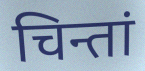
चिन्तां